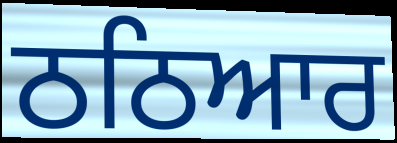
ਠਠਿਆਰ